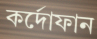
কর্দোফান